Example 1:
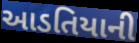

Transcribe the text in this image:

આડતિયાની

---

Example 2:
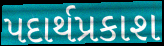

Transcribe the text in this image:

પદાર્થપ્રકાશ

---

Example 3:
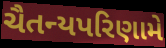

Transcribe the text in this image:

ચૈતન્યપરિણામે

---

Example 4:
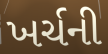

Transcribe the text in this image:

ખર્ચની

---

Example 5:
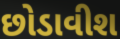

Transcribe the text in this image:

છોડાવીશ